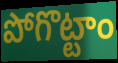
పోగొట్టాం